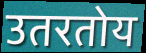
उतरतोय